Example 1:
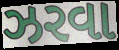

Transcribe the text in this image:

ઝરવા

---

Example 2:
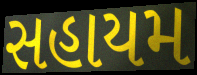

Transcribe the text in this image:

સહાયમ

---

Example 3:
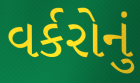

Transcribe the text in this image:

વર્કરોનું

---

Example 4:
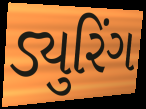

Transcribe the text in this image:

ડ્યુરિંગ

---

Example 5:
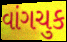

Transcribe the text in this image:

વાંગચુક